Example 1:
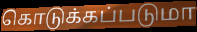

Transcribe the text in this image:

கொடுக்கப்படுமா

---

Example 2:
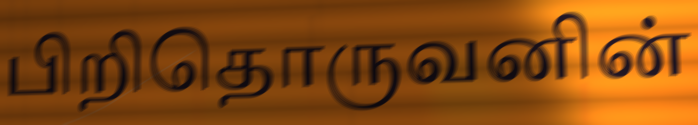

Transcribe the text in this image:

பிறிதொருவனின்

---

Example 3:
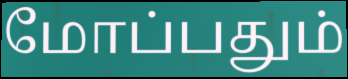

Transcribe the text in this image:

மோப்பதும்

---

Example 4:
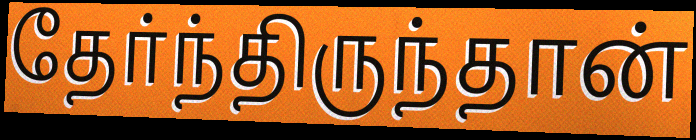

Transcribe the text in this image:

தேர்ந்திருந்தான்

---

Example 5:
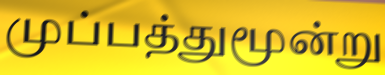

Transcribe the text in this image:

முப்பத்துமூன்று